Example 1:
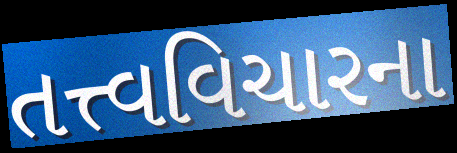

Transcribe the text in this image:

તત્ત્વવિચારના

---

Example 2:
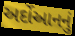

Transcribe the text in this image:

અર્દોઆનનું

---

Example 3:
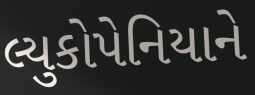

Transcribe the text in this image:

લ્યુકોપેનિયાને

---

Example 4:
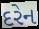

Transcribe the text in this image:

દરેન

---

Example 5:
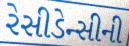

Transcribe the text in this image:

રેસીડેન્સીની